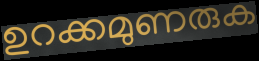
ഉറക്കമുണരുക